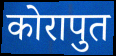
कोरापुत